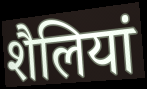
शैलियां